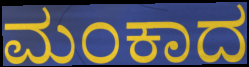
ಮಂಕಾದ